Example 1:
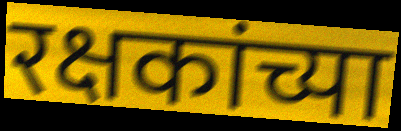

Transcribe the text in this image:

रक्षकांच्या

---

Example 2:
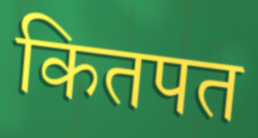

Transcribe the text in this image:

कितपत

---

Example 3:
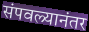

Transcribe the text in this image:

संपवल्यानंतर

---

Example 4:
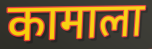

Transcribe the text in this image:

कामाला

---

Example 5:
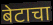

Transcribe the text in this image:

बेटाचा